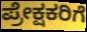
ಪ್ರೇಕ್ಷಕರಿಗೆ